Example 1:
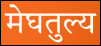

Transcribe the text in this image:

मेघतुल्य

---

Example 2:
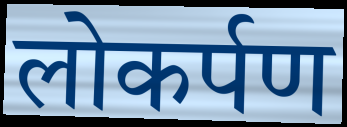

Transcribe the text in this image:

लोकर्पण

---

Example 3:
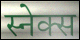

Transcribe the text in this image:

स्नेक्स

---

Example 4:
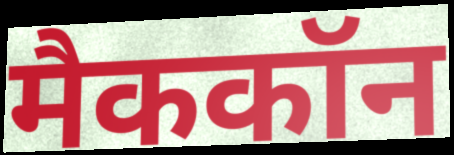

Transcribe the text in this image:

मैककॉन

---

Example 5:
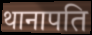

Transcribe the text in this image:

थानापति